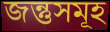
জন্তুসমূহ